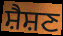
ਸ਼ੈਸ਼ਣ